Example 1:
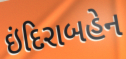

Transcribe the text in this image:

ઇંદિરાબહેન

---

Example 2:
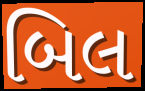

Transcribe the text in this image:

બિલ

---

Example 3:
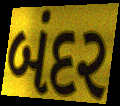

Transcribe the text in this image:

બંદર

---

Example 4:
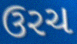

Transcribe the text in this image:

ઉરચ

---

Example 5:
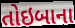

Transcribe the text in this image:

તોઇબાના